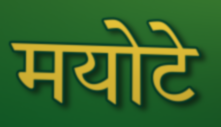
मयोटे